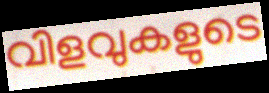
വിളവുകളുടെ